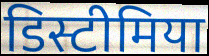
डिस्टीमिया